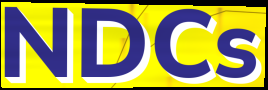
NDCs